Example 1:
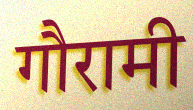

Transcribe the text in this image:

गौरामी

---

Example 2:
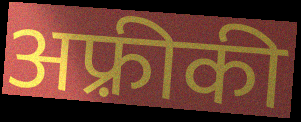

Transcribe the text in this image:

अफ़्रीकी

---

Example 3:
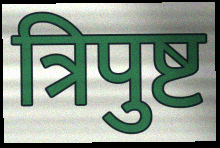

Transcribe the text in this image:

त्रिपुष्ट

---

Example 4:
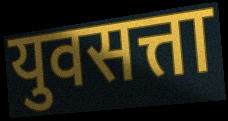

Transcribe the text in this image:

युवसत्ता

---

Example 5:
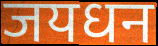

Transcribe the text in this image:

जयधन